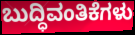
ಬುದ್ಧಿವಂತಿಕೆಗಳು